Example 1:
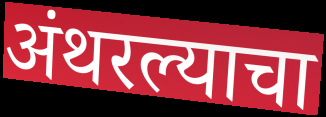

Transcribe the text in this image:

अंथरल्याचा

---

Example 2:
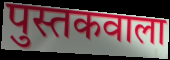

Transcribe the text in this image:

पुस्तकवाला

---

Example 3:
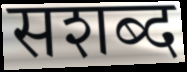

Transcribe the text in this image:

सशब्द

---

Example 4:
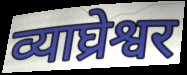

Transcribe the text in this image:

व्याघ्रेश्वर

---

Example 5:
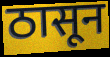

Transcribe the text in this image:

ठासून